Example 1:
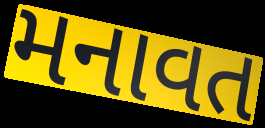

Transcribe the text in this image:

મનાવત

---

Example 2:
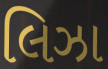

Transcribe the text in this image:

લિઝા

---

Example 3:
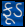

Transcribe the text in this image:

ફૂડ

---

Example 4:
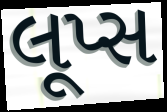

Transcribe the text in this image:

લૂપ્સ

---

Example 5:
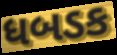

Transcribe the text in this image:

ધબડક